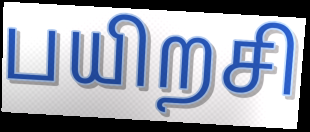
பயிறசி